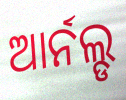
ଆର୍ନଲ୍ଡ